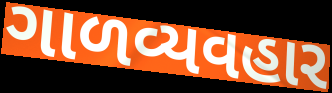
ગાળવ્યવહાર